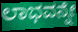
ಲಾಭವನ್ನೇ